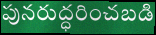
పునరుద్ధరించబడి